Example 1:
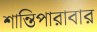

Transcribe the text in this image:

শান্তিপারাবার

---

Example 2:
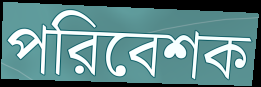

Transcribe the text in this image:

পরিবেশক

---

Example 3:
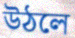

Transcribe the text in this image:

উঠলে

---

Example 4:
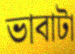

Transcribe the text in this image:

ভাবাটা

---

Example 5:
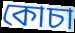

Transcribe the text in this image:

কোচা